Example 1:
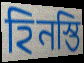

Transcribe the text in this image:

হিনস্তি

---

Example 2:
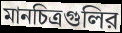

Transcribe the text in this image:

মানচিত্রগুলির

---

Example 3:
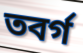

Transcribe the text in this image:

তবর্গ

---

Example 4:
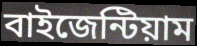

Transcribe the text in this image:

বাইজেন্টিয়াম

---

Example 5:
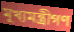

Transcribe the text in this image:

মুখ্যমন্ত্রীগণ